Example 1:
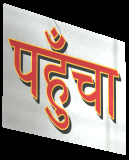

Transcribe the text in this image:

पहुँचा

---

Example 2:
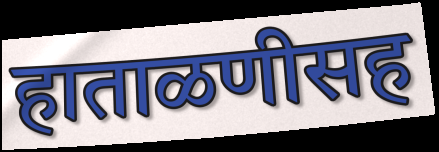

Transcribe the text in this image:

हाताळणीसह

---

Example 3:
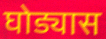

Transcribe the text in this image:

घोड्यास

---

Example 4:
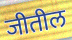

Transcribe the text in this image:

जीतील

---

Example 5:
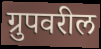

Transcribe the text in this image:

ग्रुपवरील